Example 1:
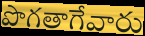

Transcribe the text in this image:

పొగతాగేవారు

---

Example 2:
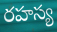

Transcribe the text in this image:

రహస్య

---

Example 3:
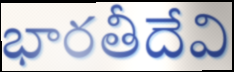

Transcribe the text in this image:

భారతీదేవి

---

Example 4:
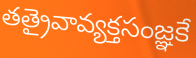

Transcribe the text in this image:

తత్రైవావ్యక్తసంజ్ఞకే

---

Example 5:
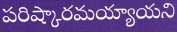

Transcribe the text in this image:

పరిష్కారమయ్యాయని